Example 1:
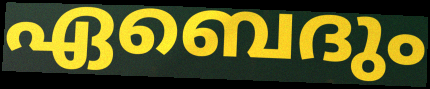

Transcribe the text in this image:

ഏബെദും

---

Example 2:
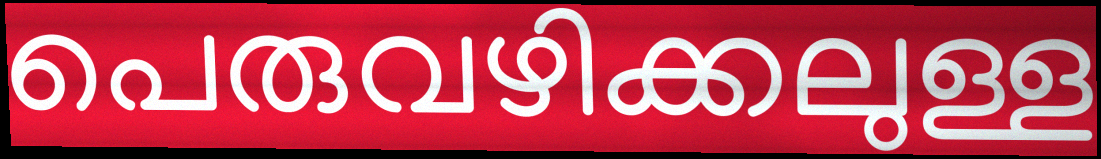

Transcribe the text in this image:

പെരുവഴിക്കലുള്ള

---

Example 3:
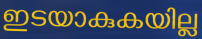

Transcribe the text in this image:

ഇടയാകുകയില്ല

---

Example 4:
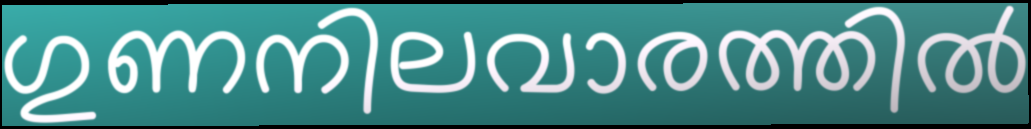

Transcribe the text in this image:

ഗുണനിലവാരത്തിൽ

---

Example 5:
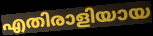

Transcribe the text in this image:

എതിരാളിയായ